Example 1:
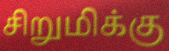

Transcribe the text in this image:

சிறுமிக்கு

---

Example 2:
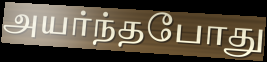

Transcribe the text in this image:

அயர்ந்தபோது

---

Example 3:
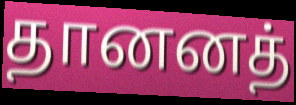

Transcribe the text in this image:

தானனத்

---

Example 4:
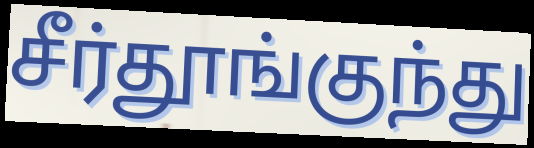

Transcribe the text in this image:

சீர்தூங்குந்து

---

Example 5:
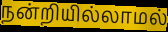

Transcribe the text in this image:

நன்றியில்லாமல்